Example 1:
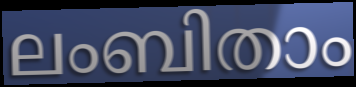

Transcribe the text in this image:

ലംബിതാം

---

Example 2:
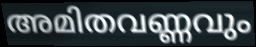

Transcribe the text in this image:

അമിതവണ്ണവും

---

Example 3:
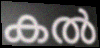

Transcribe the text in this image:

കൽ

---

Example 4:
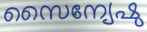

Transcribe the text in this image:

സൈന്യേഷു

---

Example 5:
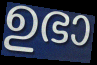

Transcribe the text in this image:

ഉഭാ